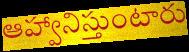
ఆహ్వానిస్తుంటారు